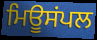
ਮਿਊਸਂਪਲ